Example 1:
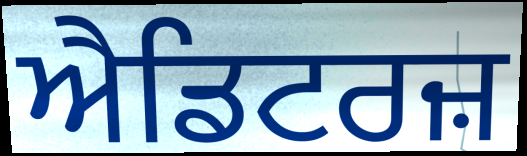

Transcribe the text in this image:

ਐਡਿਟਰਜ਼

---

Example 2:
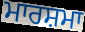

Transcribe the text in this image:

ਮਾਰਸ਼ਮਾ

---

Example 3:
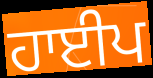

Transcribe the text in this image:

ਹਾਈਪ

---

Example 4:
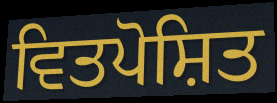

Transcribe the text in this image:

ਵਿਤਪੋਸ਼ਿਤ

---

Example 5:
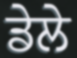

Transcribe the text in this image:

ਡੇਲੇ